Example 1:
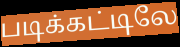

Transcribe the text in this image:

படிக்கட்டிலே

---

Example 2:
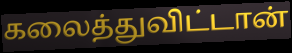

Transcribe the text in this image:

கலைத்துவிட்டான்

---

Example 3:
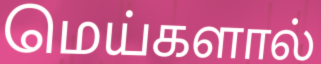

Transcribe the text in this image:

மெய்களால்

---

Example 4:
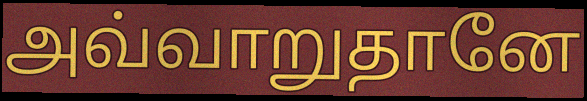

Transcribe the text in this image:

அவ்வாறுதானே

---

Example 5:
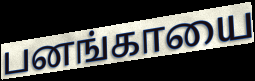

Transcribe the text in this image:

பனங்காயை